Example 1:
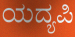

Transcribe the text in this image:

ಯದ್ಯಪಿ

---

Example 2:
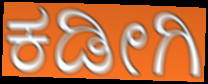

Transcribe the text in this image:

ಕಡೀಗಿ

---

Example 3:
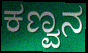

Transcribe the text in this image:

ಕಣ್ವನ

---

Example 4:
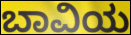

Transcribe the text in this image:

ಬಾವಿಯ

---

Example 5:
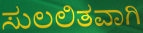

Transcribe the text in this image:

ಸುಲಲಿತವಾಗಿ